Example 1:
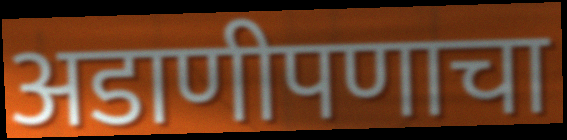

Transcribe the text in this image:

अडाणीपणाचा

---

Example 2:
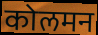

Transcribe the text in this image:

कोलमन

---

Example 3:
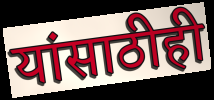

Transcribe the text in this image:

यांसाठीही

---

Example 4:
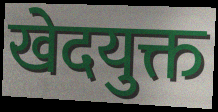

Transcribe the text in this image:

खेदयुक्त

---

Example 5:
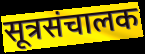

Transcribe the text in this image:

सूत्रसंचालक